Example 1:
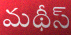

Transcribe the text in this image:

మథీస్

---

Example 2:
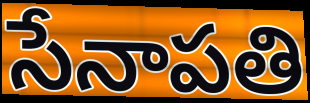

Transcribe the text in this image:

సేనాపతి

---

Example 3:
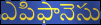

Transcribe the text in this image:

ఎపిఫానెసు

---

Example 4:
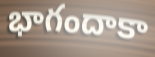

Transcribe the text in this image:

భాగందాకా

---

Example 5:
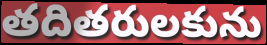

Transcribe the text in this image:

తదితరులకును